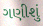
ગણીશું